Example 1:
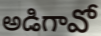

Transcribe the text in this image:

అడిగావో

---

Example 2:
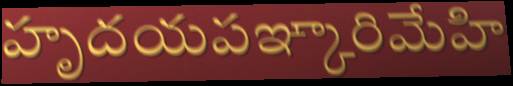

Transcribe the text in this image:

హృదయపఞ్కారిమేహి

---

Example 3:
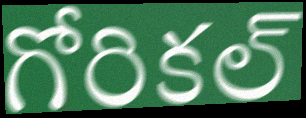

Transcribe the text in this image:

గోరికల్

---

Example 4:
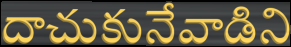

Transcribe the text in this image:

దాచుకునేవాడిని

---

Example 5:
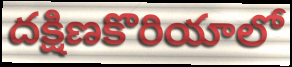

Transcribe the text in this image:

దక్షిణకొరియాలో